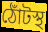
ঠোঁটস্থ